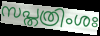
സപ്തത്രിംശഃ